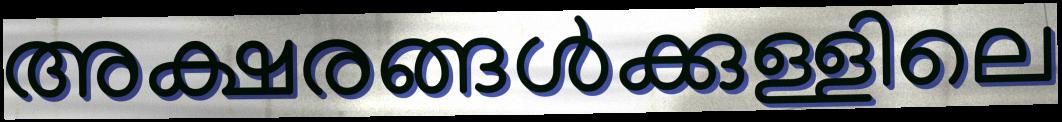
അക്ഷരങ്ങൾക്കുള്ളിലെ